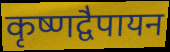
कृष्णद्वैपायन